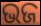
ଭଜ